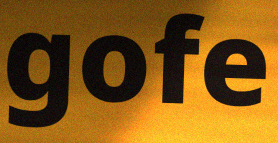
gofe